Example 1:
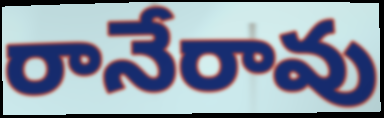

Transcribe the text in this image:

రానేరావు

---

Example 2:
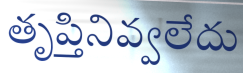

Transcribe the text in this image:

తృప్తినివ్వలేదు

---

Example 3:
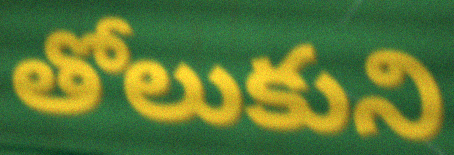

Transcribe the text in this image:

తోలుకుని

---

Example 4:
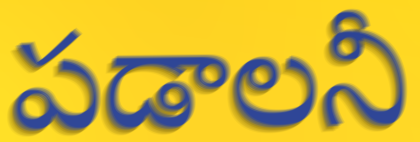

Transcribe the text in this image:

పడాలనీ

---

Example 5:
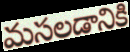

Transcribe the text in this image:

మసలడానికి